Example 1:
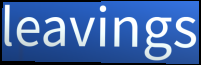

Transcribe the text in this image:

leavings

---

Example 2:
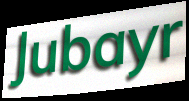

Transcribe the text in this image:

Jubayr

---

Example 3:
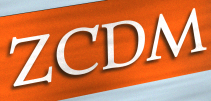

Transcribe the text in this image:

ZCDM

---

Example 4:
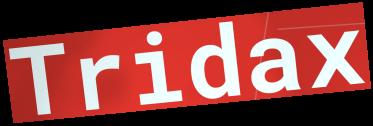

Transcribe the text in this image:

Tridax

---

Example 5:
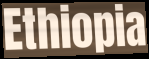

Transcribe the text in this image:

Ethiopia